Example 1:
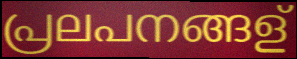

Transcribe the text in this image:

പ്രലപനങ്ങള്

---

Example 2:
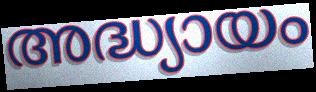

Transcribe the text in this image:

അദ്ധ്യായം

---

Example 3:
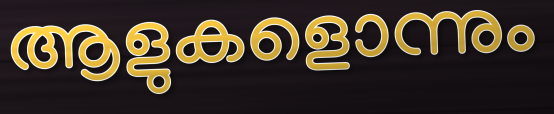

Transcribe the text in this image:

ആളുകളൊന്നും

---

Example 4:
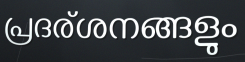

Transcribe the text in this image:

പ്രദര്ശനങ്ങളും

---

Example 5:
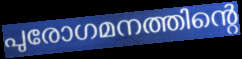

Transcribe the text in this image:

പുരോഗമനത്തിന്റെ